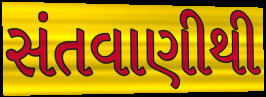
સંતવાણીથી